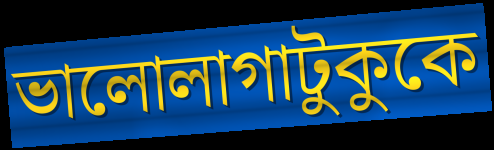
ভালোলাগাটুকুকে